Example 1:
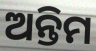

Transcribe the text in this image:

ଅନ୍ତିମ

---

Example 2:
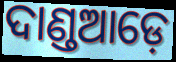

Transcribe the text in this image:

ଦାଣ୍ଡଆଡ଼େ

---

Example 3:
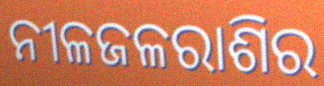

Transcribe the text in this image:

ନୀଳଜଳରାଶିର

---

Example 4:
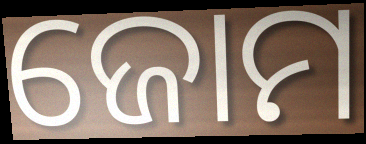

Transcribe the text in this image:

ଜୋମ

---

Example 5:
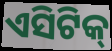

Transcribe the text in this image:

ଏସିଟିକ୍